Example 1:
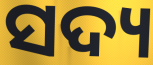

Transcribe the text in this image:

ସଦ୍ୟ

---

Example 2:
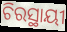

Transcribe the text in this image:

ଚିରସ୍ଥାୟୀ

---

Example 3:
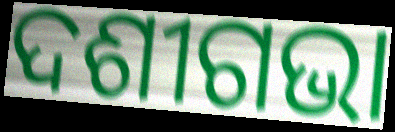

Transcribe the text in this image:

ଦଶୀଗଭା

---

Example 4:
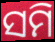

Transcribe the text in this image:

ସମି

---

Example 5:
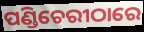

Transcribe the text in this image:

ପଣ୍ଡିଚେରୀଠାରେ